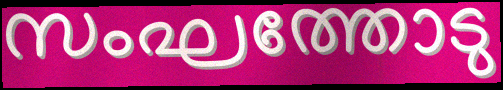
സംഘത്തോടു